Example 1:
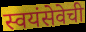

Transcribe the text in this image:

स्वयंसेवेची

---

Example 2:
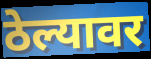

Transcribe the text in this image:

ठेल्यावर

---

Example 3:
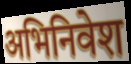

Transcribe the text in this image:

अभिनिवेश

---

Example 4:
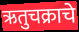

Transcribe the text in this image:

ऋतुचक्राचे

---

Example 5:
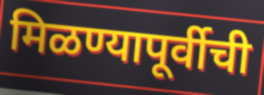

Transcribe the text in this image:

मिळण्यापूर्वीची